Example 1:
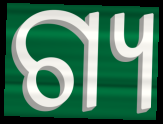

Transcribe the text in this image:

ଗ୍ଯ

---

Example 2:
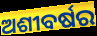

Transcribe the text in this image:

ଅଶୀବର୍ଷର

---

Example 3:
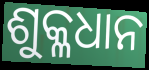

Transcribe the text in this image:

ଶୁକ୍ଳଧାନ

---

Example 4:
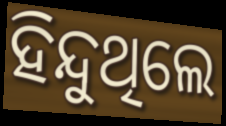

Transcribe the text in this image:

ହିନ୍ଦୁଥିଲେ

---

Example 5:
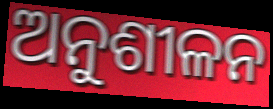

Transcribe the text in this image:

ଅନୁଶୀଳନ